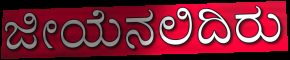
ಜೀಯೆನಲಿದಿರು